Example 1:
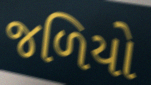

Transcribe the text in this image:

જળિયો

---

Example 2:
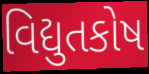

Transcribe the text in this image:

વિદ્યુતકોષ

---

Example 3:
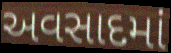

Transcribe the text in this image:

અવસાદમાં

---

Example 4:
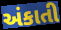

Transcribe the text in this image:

અંકાતી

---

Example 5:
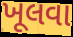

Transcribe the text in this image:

ખૂલવા